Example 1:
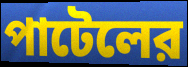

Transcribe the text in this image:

পাটেলের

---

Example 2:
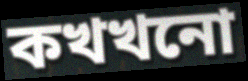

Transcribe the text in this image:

কখখনো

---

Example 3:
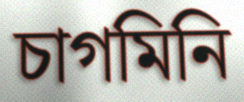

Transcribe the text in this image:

চাগমিনি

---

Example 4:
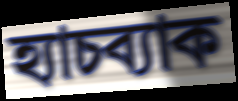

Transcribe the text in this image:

হ্যাচব্যাক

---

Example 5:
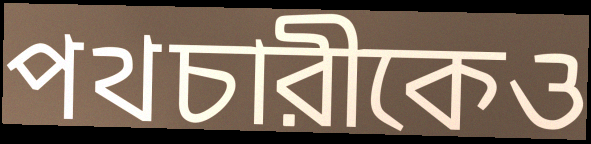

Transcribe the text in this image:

পথচারীকেও